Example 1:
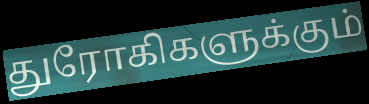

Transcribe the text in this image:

துரோகிகளுக்கும்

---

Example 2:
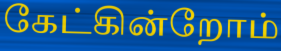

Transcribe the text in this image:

கேட்கின்றோம்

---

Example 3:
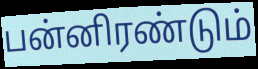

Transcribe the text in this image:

பன்னிரண்டும்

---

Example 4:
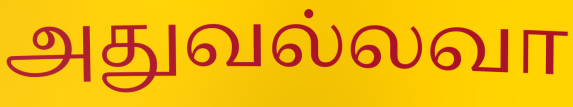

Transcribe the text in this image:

அதுவல்லவா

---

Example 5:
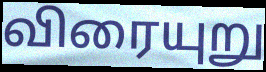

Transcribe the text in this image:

விரையுறு